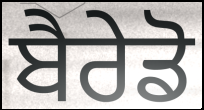
ਬੈਰੇਡੋ